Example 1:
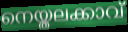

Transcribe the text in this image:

നെയ്തലക്കാവ്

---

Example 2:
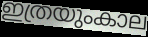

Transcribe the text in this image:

ഇത്രയുംകാല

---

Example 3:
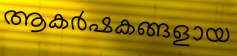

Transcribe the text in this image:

ആകർഷകങ്ങളായ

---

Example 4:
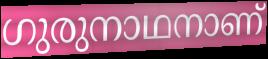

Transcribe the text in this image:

ഗുരുനാഥനാണ്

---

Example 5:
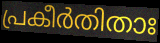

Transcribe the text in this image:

പ്രകീർതിതാഃ